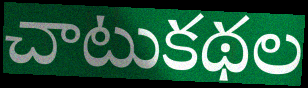
చాటుకథల